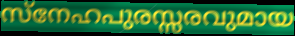
സ്നേഹപുരസ്സരവുമായ